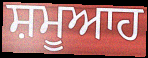
ਸ਼ਮੂਆਹ